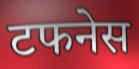
टफनेस